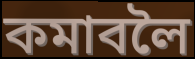
কমাবলৈ